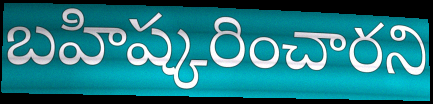
బహిష్కరించారని